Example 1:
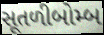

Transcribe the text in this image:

સૂતળીબોમ્બ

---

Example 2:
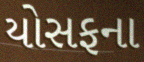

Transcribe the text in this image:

યોસફના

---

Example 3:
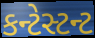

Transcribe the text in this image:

કન્ટેસ્ટન્ટ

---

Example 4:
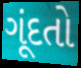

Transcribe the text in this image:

ગૂંદતો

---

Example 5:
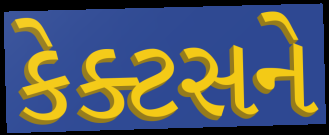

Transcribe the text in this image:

કેક્ટસને